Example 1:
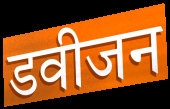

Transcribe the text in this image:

डवीजन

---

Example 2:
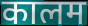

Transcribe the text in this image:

कालम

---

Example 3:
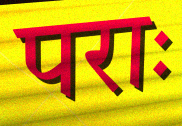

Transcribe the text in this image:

पराः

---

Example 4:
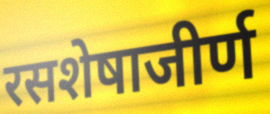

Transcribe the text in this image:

रसशेषाजीर्ण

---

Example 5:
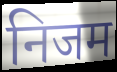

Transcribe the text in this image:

निजम